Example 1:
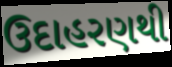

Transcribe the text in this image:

ઉદાહરણથી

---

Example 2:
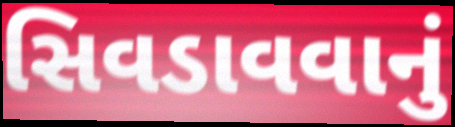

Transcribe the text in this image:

સિવડાવવાનું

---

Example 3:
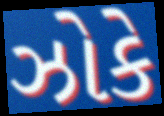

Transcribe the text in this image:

ઝોકે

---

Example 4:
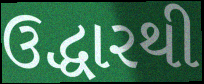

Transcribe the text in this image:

ઉદ્ધારથી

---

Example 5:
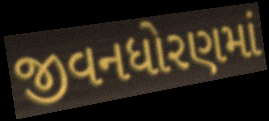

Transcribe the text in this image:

જીવનધોરણમાં